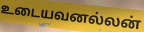
உடையவனல்லன்